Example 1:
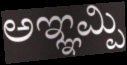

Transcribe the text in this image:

ಅಞ್ಞಮ್ಪಿ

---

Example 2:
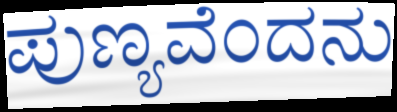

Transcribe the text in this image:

ಪುಣ್ಯವೆಂದನು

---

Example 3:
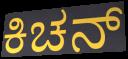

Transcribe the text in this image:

ಕಿಚನ್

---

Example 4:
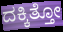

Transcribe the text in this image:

ದಕ್ಕಿತ್ತೋ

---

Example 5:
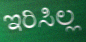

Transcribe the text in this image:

ಇರಿಸಿಲ್ಲ